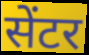
सेंटर